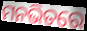
ମନଭିତରେ